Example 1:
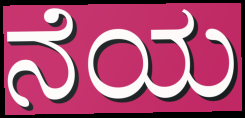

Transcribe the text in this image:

ನೆಯ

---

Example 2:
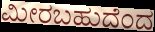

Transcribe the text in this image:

ಮೀರಬಹುದೆಂದ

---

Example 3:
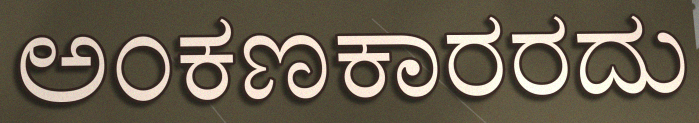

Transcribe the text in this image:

ಅಂಕಣಕಾರರದು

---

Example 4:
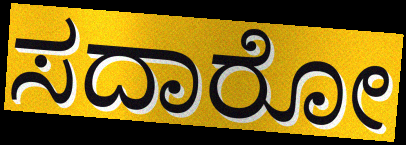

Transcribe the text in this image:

ಸದಾರೋ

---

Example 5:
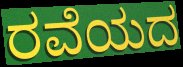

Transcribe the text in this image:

ರವೆಯದ